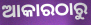
ଆକାରଠାରୁ